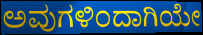
ಅವುಗಳಿಂದಾಗಿಯೇ